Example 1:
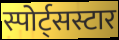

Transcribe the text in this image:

स्पोर्ट्सस्टार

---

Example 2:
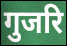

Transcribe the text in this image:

गुजरि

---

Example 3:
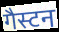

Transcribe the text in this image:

गैस्टन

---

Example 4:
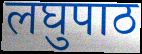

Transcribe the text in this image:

लघुपाठ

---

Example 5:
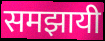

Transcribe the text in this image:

समझायी